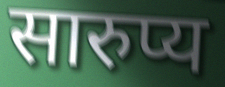
सारुप्य